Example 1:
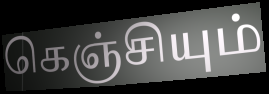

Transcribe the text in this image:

கெஞ்சியும்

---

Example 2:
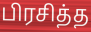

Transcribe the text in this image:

பிரசித்த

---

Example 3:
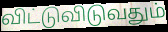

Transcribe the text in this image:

விட்டுவிடுவதும்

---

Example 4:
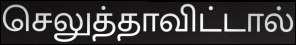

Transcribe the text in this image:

செலுத்தாவிட்டால்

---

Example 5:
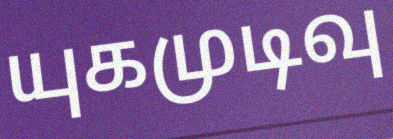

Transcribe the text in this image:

யுகமுடிவு